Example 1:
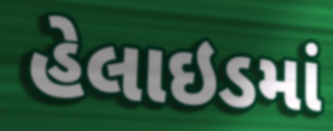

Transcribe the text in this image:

હેલાઇડમાં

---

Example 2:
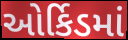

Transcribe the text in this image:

ઓર્કિડમાં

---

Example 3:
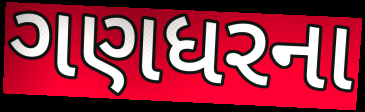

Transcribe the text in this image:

ગણધરના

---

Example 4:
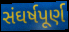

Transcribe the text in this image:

સંઘર્ષપૂર્ણ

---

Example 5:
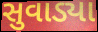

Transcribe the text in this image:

સુવાડ્યા